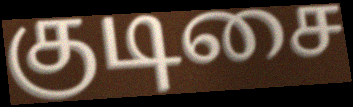
குடிசை